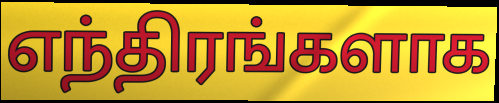
எந்திரங்களாக